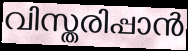
വിസ്തരിപ്പാൻ